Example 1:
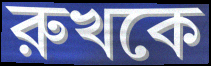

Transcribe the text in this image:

রুখকে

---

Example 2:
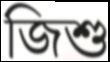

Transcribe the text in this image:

জিশু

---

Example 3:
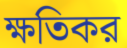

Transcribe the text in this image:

ক্ষতিকর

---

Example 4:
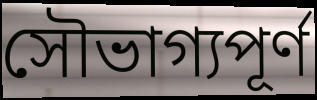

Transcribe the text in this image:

সৌভাগ্যপূর্ণ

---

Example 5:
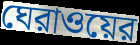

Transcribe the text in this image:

ঘেরাওয়ের